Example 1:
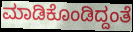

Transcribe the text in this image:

ಮಾಡಿಕೊಂಡಿದ್ದಂತೆ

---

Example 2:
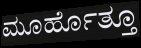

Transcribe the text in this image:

ಮೂರ್ಹೊತ್ತೂ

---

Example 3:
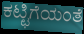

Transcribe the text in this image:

ಕಟ್ಟಿಗೆಯಂತೆ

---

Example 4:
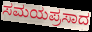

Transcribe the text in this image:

ಸಮಯಪ್ರಸಾದ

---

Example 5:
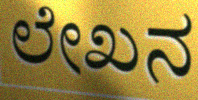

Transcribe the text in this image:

ಲೇಖನ